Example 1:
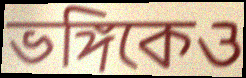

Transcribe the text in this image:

ভঙ্গিকেও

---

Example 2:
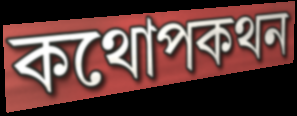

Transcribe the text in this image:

কথোপকথন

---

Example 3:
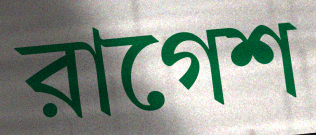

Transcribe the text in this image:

রাগেশ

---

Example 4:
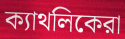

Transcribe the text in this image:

ক্যাথলিকেরা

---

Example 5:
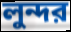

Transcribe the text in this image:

লুন্দর